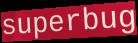
superbug